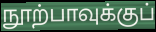
நூற்பாவுக்குப்